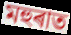
মহুৰাত